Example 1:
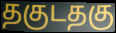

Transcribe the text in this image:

தகுடதகு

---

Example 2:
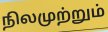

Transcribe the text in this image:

நிலமுற்றும்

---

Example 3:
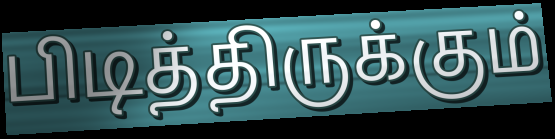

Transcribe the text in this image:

பிடித்திருக்கும்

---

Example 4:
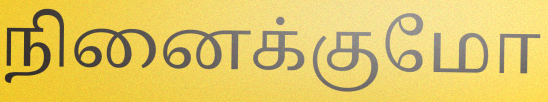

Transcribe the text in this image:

நினைக்குமோ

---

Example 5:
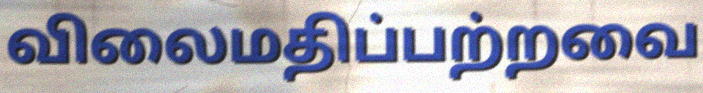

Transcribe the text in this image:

விலைமதிப்பற்றவை